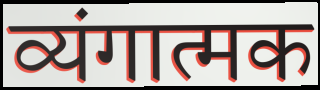
व्यंगात्मक